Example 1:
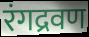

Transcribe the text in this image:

रंगद्रवण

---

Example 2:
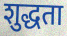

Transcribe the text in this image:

शुद्धता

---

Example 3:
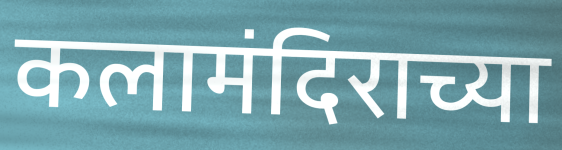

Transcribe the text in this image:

कलामंदिराच्या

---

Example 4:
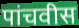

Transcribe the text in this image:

पांचवीस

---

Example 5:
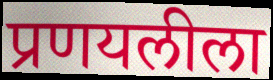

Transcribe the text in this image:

प्रणयलीला